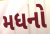
મધનો